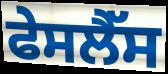
ਫੇਸਲੈੱਸ